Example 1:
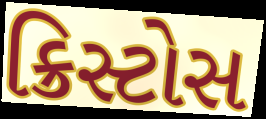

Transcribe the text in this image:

ક્રિસ્ટોસ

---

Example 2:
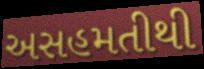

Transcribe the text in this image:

અસહમતીથી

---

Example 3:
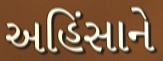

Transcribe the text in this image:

અહિંસાને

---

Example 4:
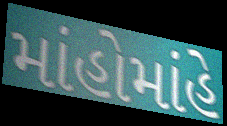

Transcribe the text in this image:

માંહોમાંહે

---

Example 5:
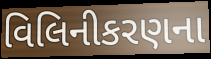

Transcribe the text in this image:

વિલિનીકરણના